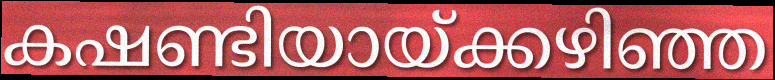
കഷണ്ടിയായ്ക്കഴിഞ്ഞ